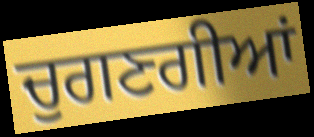
ਚੁਗਣਗੀਆਂ